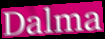
Dalma